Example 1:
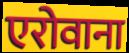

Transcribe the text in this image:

एरोवाना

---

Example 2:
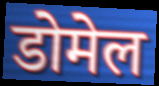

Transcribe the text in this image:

डोमेल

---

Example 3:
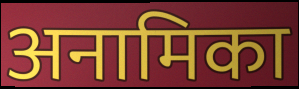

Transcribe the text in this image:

अनामिका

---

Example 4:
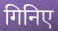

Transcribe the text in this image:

गिनिए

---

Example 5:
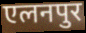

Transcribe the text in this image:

एलनपुर